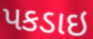
પકડાઇ